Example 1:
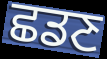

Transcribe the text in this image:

ਛਡਣ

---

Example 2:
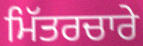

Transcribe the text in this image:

ਮਿੱਤਰਚਾਰੇ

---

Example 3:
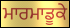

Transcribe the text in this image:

ਮਾਰਮਾਡੂਕੇ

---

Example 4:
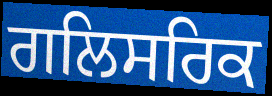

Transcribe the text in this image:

ਗਲਿਸਰਿਕ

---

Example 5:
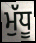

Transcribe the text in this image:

ਮੁੱਧੂ